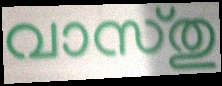
വാസ്തു